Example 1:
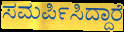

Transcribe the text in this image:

ಸಮರ್ಪಿಸಿದ್ದಾರೆ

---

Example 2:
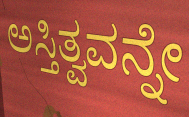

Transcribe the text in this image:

ಅಸ್ತಿತ್ವವನ್ನೇ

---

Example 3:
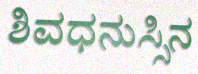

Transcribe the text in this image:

ಶಿವಧನುಸ್ಸಿನ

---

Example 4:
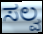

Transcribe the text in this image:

ಸಲ್ವ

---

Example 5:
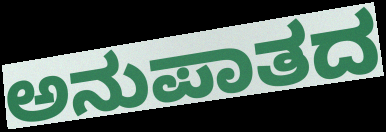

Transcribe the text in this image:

ಅನುಪಾತದ